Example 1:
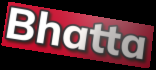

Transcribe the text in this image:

Bhatta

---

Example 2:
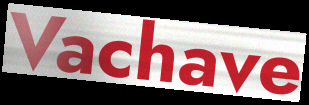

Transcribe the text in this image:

Vachave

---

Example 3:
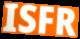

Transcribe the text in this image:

ISFR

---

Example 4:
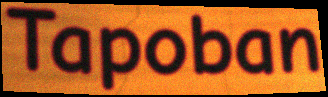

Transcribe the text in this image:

Tapoban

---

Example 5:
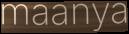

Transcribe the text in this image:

maanya